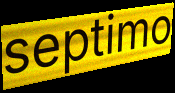
septimo